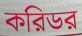
করিডর